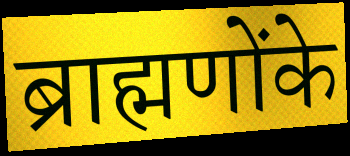
ब्राह्मणोंके